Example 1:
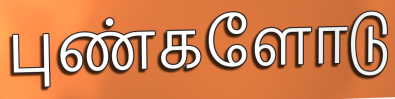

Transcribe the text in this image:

புண்களோடு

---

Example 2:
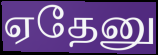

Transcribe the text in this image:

ஏதேனு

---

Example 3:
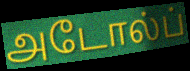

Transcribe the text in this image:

அடோல்ப்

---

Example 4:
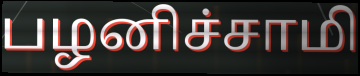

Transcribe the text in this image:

பழனிச்சாமி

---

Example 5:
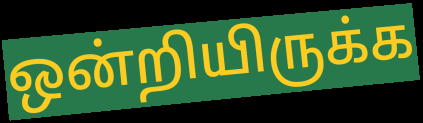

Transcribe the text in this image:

ஒன்றியிருக்க